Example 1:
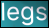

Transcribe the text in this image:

legs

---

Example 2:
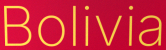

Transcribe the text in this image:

Bolivia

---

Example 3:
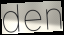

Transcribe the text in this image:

den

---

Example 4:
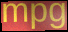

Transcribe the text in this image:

mpg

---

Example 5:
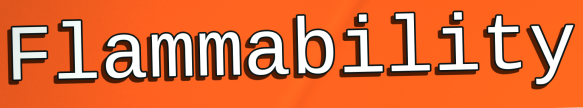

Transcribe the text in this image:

Flammability